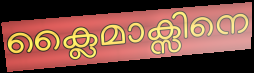
ക്ലൈമാക്സിനെ